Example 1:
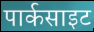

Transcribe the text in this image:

पार्कसाइट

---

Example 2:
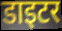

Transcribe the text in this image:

डाइटर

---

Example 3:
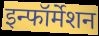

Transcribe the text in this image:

इन्फॉर्मेशन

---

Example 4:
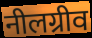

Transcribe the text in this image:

नीलग्रीव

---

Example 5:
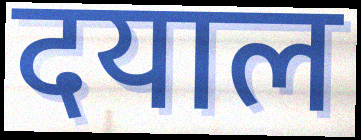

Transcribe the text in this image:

दयाल